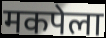
मकपेला